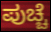
ಪುಚ್ಚೆ